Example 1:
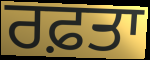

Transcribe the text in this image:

ਰਫ਼ਤਾ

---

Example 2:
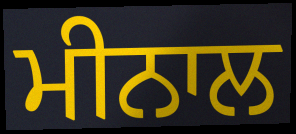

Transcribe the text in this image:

ਮੀਨਾਲ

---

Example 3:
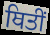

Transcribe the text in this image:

ਥਿਤੀਂ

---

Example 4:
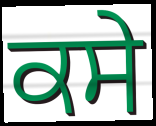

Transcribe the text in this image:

ਕਸੇ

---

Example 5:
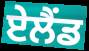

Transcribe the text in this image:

ਏਲੈਂਡ